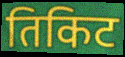
तिकिट